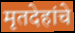
मृतदेहांचे